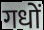
गधों